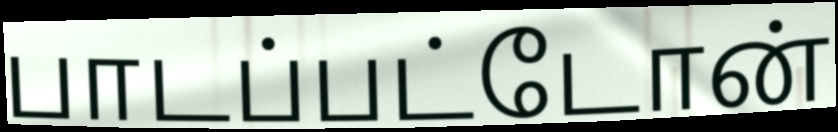
பாடப்பட்டோன்